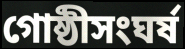
গোষ্ঠীসংঘৰ্ষ